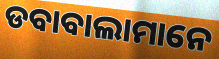
ଡବାବାଲାମାନେ